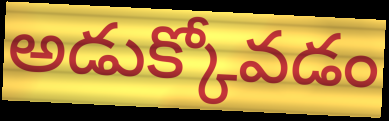
అడుక్కోవడం